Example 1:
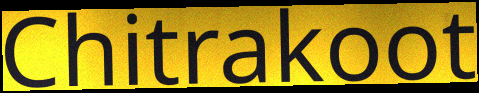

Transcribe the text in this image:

Chitrakoot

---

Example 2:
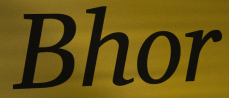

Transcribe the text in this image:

Bhor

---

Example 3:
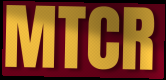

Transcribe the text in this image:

MTCR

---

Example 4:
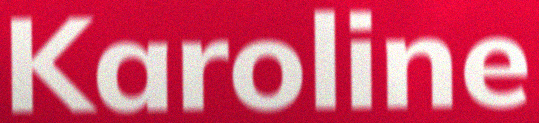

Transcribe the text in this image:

Karoline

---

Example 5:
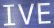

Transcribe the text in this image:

IVE